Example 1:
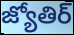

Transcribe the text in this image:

జ్యోతిర్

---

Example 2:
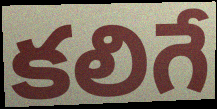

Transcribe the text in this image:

కలిగే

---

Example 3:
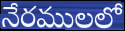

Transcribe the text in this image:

నేరములలో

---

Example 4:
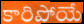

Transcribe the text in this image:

కారిపోయే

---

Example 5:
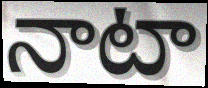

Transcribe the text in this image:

నాటా